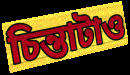
চিন্তাটাও